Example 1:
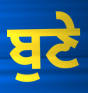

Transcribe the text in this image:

ਬੁਣੇ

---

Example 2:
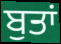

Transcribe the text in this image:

ਬੁਤਾਂ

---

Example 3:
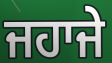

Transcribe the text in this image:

ਜਹਾਜੇ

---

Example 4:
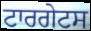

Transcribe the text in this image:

ਟਾਰਗੇਟਸ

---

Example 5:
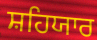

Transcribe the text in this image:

ਸ਼ਹਿਯਾਰ